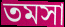
তমসা